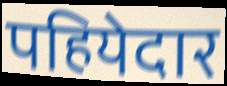
पहियेदार